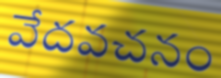
వేదవచనం